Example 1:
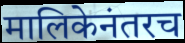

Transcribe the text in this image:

मालिकेनंतरच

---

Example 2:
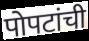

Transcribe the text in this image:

पोपटांची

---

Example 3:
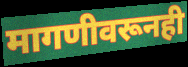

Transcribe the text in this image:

मागणीवरूनही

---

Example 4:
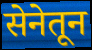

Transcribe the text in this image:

सेनेतून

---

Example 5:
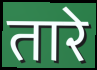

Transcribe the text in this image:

तारे